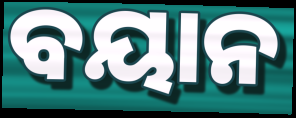
ବୟାନ